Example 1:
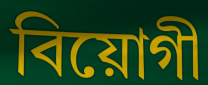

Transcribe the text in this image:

বিয়োগী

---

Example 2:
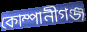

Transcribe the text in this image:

কোম্পানীগঞ্জ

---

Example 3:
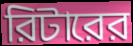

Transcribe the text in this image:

রিটারের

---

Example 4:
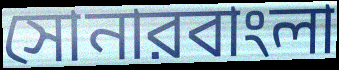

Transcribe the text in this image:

সোনারবাংলা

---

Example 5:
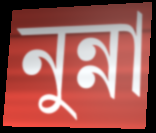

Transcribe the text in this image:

নুন্না